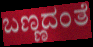
ಬಣ್ಣದಂತೆ